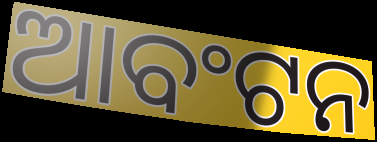
ଆବଂଟନ